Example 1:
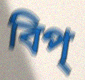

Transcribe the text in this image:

বিপ্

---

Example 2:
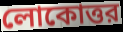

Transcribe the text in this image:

লোকোত্তর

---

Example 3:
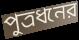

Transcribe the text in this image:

পুত্রধনের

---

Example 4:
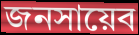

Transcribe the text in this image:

জনসায়েব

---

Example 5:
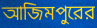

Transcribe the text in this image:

আজিমপুরের